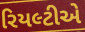
રિયલ્ટીએ